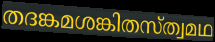
തദങ്കമശങ്കിതസ്ത്വമഥ